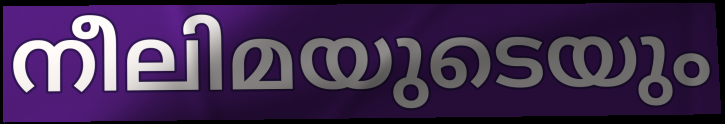
നീലിമയുടെയും